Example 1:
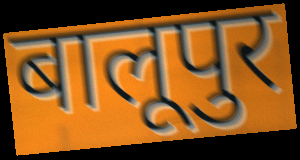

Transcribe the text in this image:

बालूपुर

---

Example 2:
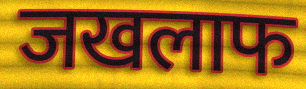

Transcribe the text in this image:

जखलाफ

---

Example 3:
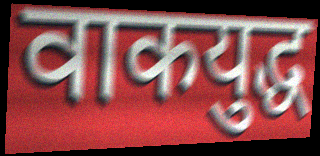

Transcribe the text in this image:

वाकयुद्ध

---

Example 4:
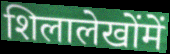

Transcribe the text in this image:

शिलालेखोंमें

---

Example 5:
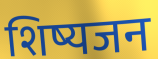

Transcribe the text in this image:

शिष्यजन